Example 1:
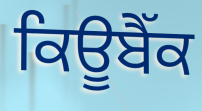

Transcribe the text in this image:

ਕਿਊਬੈੱਕ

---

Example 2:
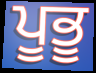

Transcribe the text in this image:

ਪੂਭੂ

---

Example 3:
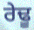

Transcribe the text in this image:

ਰੇਢੂ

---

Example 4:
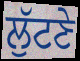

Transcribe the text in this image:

ਲੁੱਟਣੇ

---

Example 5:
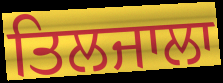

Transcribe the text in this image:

ਤਿਲਜਾਲਾ